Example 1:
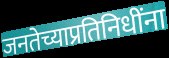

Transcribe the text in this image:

जनतेच्याप्रतिनिधींना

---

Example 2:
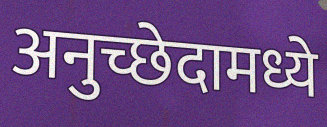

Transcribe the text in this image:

अनुच्छेदामध्ये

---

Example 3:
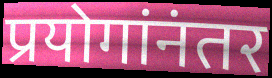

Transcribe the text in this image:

प्रयोगांनंतर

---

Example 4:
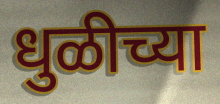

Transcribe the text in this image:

धुळीच्या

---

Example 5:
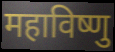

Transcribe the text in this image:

महाविष्णु